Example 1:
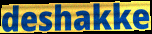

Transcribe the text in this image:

deshakke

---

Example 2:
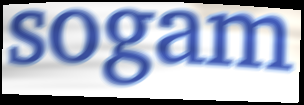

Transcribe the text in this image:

sogam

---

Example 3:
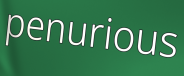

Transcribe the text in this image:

penurious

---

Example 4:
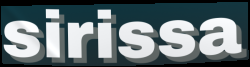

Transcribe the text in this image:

sirissa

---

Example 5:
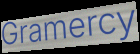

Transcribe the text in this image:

Gramercy